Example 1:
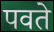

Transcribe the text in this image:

पवते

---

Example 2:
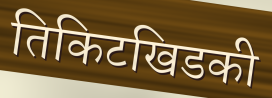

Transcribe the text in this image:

तिकिटखिडकी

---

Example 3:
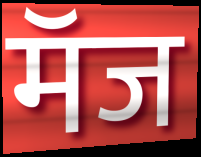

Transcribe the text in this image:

मॅज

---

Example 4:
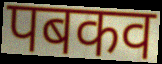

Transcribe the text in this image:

पबकव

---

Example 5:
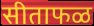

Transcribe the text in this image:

सीताफळ